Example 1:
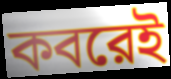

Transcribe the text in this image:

কবরেই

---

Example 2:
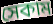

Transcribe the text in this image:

সেকাম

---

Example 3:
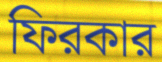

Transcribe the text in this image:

ফিরকার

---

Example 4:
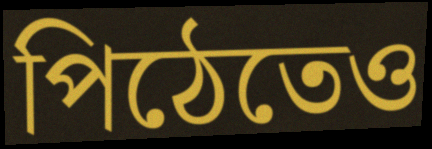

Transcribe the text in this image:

পিঠেতেও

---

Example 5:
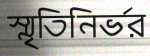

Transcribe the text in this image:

স্মৃতিনির্ভর